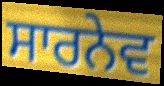
ਸਾਰਨੇਵ